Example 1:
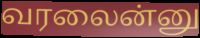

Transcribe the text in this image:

வரலைன்னு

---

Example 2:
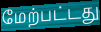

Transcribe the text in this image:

மேற்பட்டது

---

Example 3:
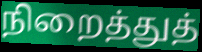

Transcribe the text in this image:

நிறைத்துத்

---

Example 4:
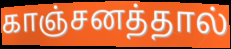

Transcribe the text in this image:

காஞ்சனத்தால்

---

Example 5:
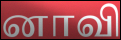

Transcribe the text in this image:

னாவி